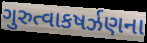
ગુરુત્વાકષર્ઝણના